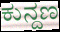
ಕುನ್ದಣ